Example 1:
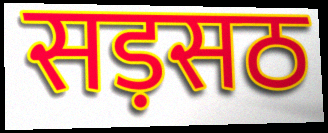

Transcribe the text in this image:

सड़सठ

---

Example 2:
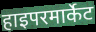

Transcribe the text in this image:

हाइपरमार्केट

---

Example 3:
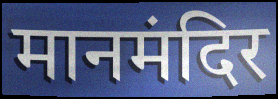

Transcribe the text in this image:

मानमंदिर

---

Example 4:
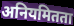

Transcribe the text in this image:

अनियमितता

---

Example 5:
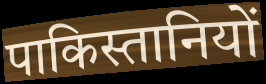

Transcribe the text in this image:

पाकिस्तानियों